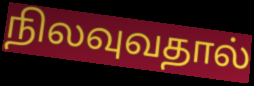
நிலவுவதால்